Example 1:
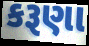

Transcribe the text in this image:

કરૂણા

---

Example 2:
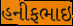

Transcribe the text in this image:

હનીફભાઇ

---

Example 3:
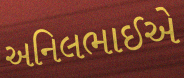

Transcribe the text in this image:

અનિલભાઈએ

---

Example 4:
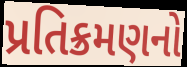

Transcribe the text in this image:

પ્રતિક્રમણનો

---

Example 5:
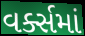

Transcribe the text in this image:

વર્ક્સમાં